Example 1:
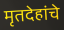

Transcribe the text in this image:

मृतदेहांचे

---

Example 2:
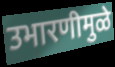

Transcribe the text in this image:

उभारणीमुळे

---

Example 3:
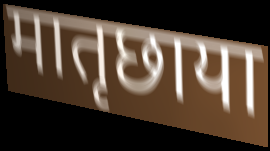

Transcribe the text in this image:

मातृछाया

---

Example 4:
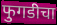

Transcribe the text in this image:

फुगडीचा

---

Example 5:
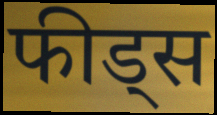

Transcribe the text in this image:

फीड्स